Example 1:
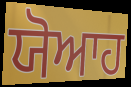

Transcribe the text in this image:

ਯੋਆਹ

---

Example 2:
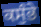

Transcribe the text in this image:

ਕਸੁੰਭੇ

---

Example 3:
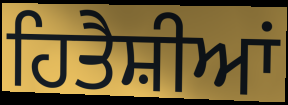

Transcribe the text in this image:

ਹਿਤੈਸ਼ੀਆਂ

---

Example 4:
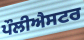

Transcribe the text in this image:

ਪੌਲੀਐਸਟਰ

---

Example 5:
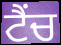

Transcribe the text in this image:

ਟੈਂਚ